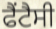
ਫੈਂਟੈਸੀ